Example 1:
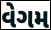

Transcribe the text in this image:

વેગમ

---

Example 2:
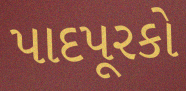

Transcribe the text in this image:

પાદપૂરકો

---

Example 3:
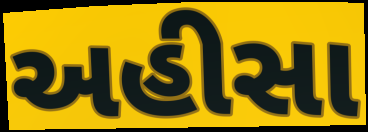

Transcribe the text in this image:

અહીસા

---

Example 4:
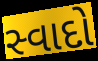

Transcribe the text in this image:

સ્વાદો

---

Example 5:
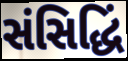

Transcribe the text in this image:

સંસિદ્ધિં